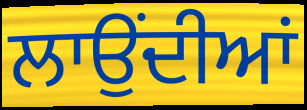
ਲਾਉੰਦੀਆਂ